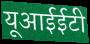
यूआईईटी